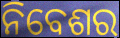
ନିବେଶର